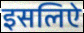
इसलिऐ